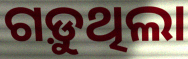
ଗଡ଼ୁଥିଲା